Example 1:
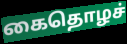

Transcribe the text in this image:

கைதொழச்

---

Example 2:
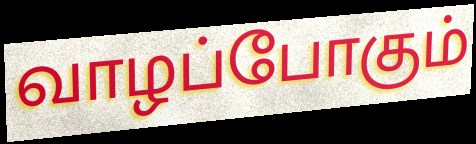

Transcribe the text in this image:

வாழப்போகும்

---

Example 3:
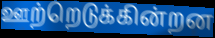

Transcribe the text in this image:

ஊற்றெடுக்கின்றன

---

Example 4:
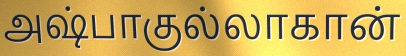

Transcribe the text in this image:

அஷ்பாகுல்லாகான்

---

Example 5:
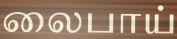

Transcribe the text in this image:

லைபாய்